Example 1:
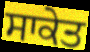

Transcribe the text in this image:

ਸਾਕੇਤ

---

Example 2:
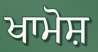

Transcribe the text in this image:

ਖਾਮੋਸ਼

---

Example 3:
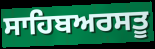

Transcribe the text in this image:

ਸਾਹਿਬਅਰਸਤੂ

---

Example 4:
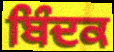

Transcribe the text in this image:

ਬਿੰਦਕ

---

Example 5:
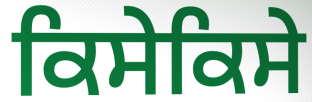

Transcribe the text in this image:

ਕਿਸੇਕਿਸੇ